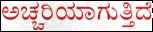
ಅಚ್ಚರಿಯಾಗುತ್ತಿದೆ